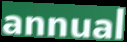
annual